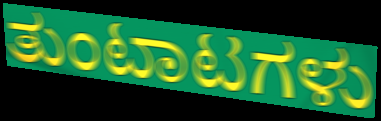
ತುಂಟಾಟಗಳು